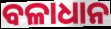
ବଳାଧାନ